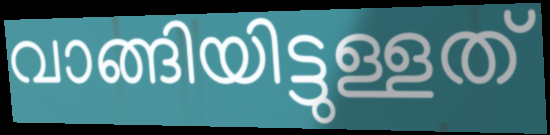
വാങ്ങിയിട്ടുള്ളത്